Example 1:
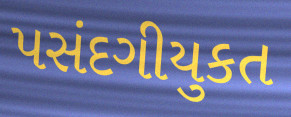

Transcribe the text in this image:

પસંદગીયુકત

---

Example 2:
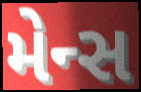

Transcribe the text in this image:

મેન્સ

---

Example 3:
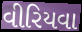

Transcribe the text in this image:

વીરિયવા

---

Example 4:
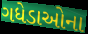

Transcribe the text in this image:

ગધેડાઓના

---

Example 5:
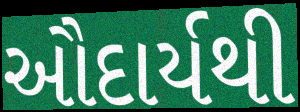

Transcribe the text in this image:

ઔદાર્યથી